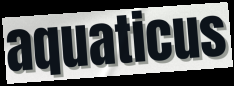
aquaticus